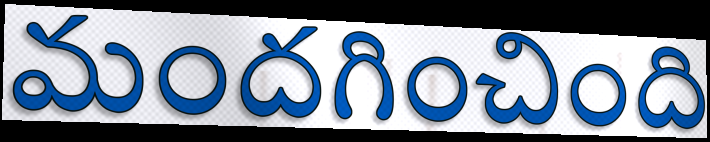
మందగించింది